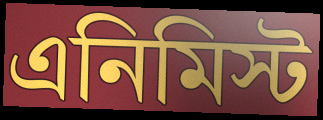
এনিমিস্ট